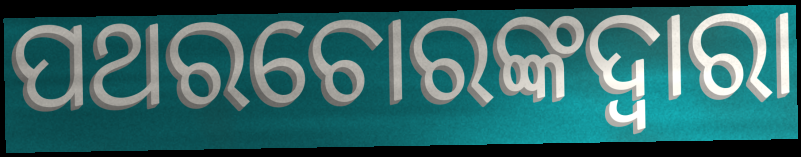
ପଥରଚୋରଙ୍କଦ୍ୱାରା